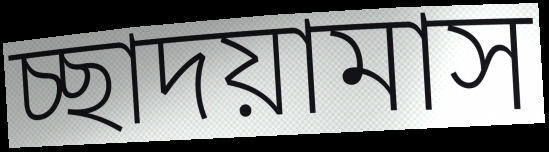
চ্ছাদয়ামাস